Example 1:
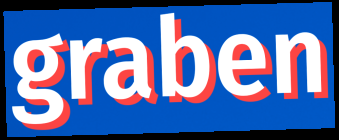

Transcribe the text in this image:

graben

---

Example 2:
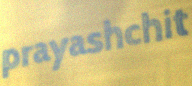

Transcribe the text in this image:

prayashchit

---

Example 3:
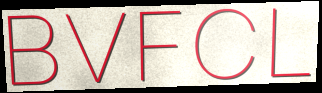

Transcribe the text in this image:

BVFCL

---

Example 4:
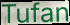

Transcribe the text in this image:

Tufan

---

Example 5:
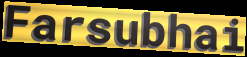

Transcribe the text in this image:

Farsubhai